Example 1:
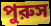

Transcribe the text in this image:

পুরুস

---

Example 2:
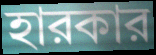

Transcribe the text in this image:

হারকার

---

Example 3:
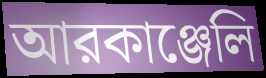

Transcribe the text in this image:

আরকাঞ্জেলি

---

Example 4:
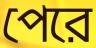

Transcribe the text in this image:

পেরে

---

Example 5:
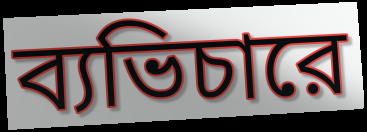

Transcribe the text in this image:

ব্যভিচারে